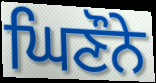
ਘਿਣੌਨੇ